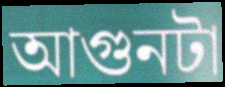
আগুনটা